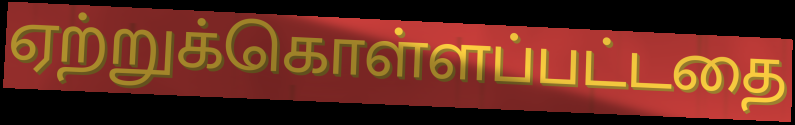
ஏற்றுக்கொள்ளப்பட்டதை